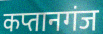
कप्तानगंज